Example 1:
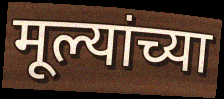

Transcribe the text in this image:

मूल्यांच्या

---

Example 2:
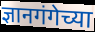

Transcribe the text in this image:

ज्ञानगंगेच्या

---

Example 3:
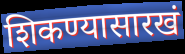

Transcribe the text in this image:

शिकण्यासारखं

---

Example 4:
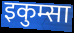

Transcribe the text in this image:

इकुम्सा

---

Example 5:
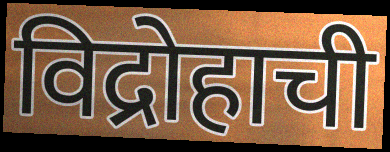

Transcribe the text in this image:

विद्रोहाची